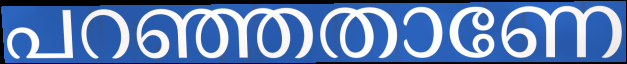
പറഞ്ഞതാണേ